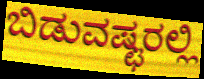
ಬಿಡುವಷ್ಟರಲ್ಲಿ